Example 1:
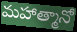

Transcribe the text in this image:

మహాత్మానో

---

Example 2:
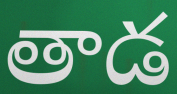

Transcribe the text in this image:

తాడ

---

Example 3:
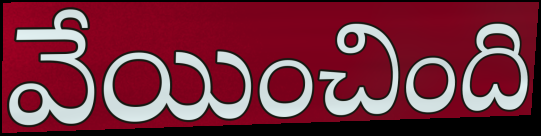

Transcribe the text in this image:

వేయించింది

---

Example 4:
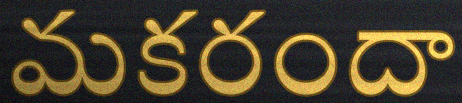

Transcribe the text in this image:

మకరందా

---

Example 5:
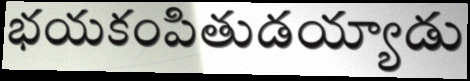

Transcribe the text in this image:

భయకంపితుడయ్యాడు